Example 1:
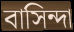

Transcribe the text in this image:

বাসিন্দা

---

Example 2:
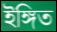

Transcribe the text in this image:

ইঙ্গিত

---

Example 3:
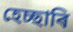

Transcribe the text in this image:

হেচ্ছাৰি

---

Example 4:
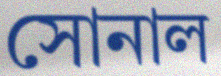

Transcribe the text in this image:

সোনাল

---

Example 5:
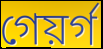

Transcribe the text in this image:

গেয়ৰ্গ